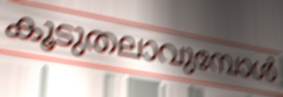
കൂടുതലാവുമ്പോൾ